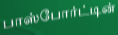
பாஸ்போர்ட்டின்